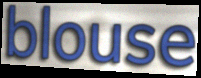
blouse